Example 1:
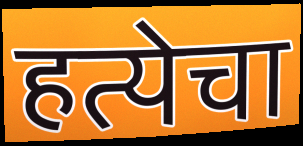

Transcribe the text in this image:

हत्येचा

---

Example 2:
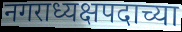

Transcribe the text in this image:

नगराध्यक्षपदाच्या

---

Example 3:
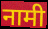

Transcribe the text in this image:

नामी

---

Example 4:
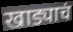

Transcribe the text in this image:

खाड्याचं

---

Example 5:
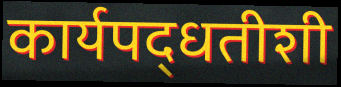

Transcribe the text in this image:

कार्यपद्धतीशी